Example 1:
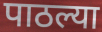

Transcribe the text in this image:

पाठल्या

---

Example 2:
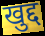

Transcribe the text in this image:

खुद्द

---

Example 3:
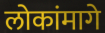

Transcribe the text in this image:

लोकांमागे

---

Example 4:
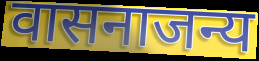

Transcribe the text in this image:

वासनाजन्य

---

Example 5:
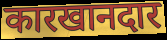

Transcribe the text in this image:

कारखानदार